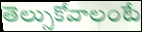
తెల్సుకోవాలంటే